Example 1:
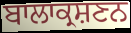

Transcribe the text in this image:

ਬਾਲਾਕ੍ਰਸ਼ਣਨ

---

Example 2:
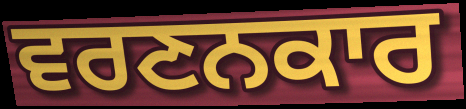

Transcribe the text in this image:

ਵਰਣਨਕਾਰ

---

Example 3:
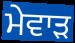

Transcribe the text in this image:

ਮੇਵਾੜ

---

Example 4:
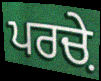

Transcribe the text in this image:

ਪਰਚ਼ੇ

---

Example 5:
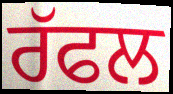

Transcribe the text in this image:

ਰੱਫਲ